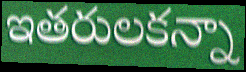
ఇతరులకన్నా